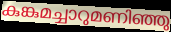
കുങ്കുമച്ചാറുമണിഞ്ഞു